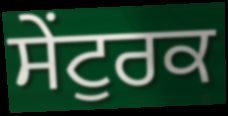
ਸੇਂਟੁਰਕ